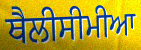
ਥੈਲੀਸੀਮੀਆ